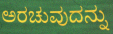
ಅರಚುವುದನ್ನು